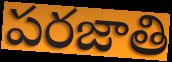
పరజాతి